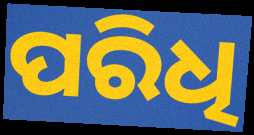
ପରିଧି